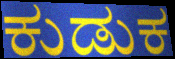
ಕುಡುಕ